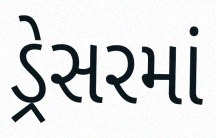
ડ્રેસરમાં